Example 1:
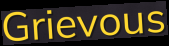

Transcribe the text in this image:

Grievous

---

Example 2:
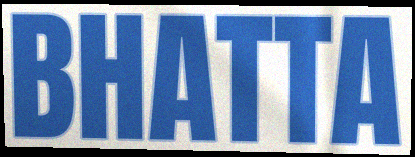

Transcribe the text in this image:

BHATTA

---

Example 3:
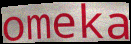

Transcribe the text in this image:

omeka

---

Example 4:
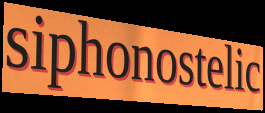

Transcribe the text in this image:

siphonostelic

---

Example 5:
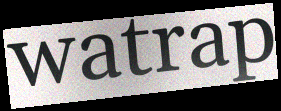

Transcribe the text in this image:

watrap